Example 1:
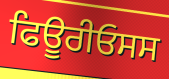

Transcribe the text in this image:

ਫਿਊਰੀਓਸਸ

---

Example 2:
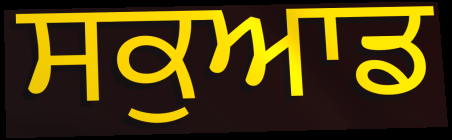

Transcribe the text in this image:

ਸਕੁਆਡ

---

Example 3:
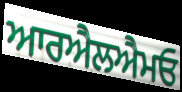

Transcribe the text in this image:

ਆਰਐਲਐਮਓ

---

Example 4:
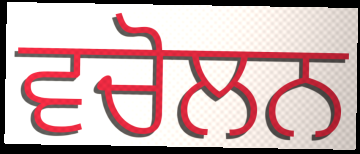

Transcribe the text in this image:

ਵਚੋਲਨ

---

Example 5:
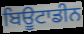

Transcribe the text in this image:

ਬਿਊਟਾਡੀਨ